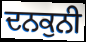
ਦਨਕੁਨੀ